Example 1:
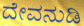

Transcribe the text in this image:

ದೇವನುಡಿ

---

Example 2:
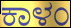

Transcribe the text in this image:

ಕಾಳಂ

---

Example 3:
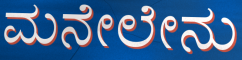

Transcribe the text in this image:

ಮನೇಲೇನು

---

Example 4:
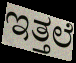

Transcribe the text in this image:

ಇತ್ತಲೆ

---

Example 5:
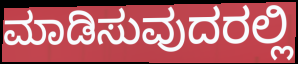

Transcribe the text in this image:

ಮಾಡಿಸುವುದರಲ್ಲಿ